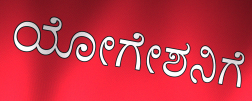
ಯೋಗೇಶನಿಗೆ